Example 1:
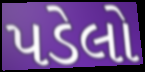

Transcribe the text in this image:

પડેલો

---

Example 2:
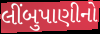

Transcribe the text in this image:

લીંબુપાણીનો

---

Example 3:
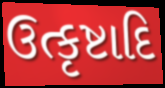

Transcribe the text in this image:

ઉત્કૃષ્ટાદિ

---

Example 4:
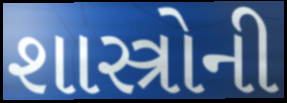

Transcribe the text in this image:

શાસ્ત્રોની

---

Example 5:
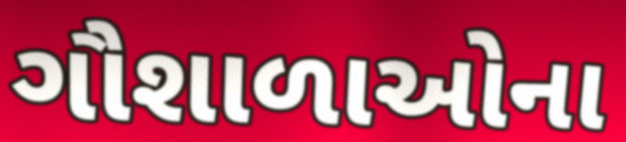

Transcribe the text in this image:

ગૌશાળાઓના